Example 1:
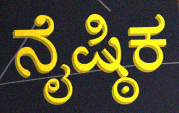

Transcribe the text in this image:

ನೈಷ್ಠಿಕ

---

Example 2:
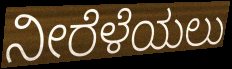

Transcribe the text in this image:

ನೀರೆಳೆಯಲು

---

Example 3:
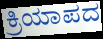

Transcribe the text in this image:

ಕ್ರಿಯಾಪದ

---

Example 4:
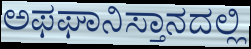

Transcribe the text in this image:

ಅಫಘಾನಿಸ್ತಾನದಲ್ಲಿ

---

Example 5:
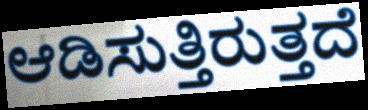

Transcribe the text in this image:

ಆಡಿಸುತ್ತಿರುತ್ತದೆ